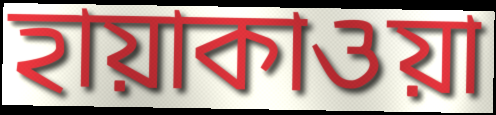
হায়াকাওয়া